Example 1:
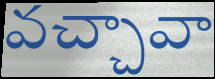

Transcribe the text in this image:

వచ్చావా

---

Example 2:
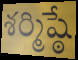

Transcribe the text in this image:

శర్మిష్ఠే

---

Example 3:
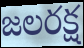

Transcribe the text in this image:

జలరక్ష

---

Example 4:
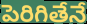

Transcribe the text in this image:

పెరిగితేనే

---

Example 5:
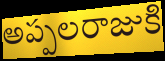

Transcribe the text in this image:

అప్పలరాజుకి